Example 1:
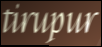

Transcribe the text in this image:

tirupur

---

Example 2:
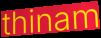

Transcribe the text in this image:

thinam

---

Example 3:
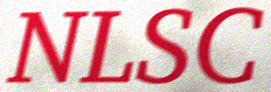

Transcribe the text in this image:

NLSC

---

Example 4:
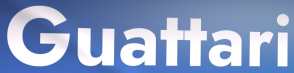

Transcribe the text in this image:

Guattari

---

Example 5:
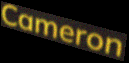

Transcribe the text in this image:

Cameron